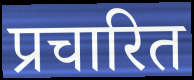
प्रचारित